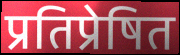
प्रतिप्रेषित